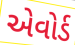
એવોર્ડ